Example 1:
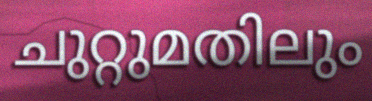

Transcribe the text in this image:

ചുറ്റുമതിലും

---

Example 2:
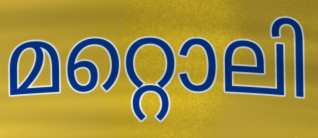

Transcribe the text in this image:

മറ്റൊലി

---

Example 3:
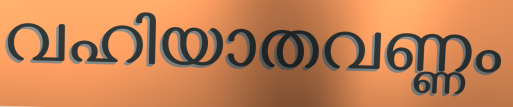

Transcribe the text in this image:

വഹിയാതവണ്ണം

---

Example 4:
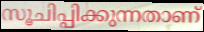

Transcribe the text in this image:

സൂചിപ്പിക്കുന്നതാണ്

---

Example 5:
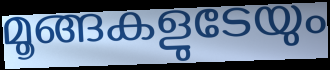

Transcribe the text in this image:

മൂങ്ങകളുടേയും